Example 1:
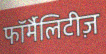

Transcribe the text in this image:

फॉर्मैलिटीज़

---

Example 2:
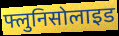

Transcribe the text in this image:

फ्लुनिसोलाइड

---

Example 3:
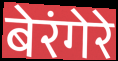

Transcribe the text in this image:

बेरंगेरे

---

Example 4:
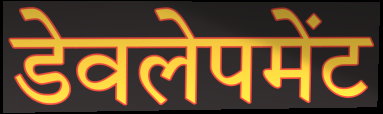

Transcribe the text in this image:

डेवलेपमेंट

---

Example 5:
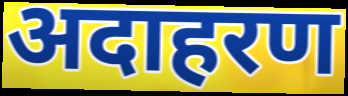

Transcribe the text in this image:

अदाहरण